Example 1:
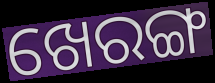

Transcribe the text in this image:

ଖେରଙ୍ଗ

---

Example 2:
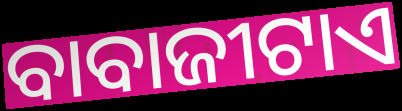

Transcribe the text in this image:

ବାବାଜୀଟାଏ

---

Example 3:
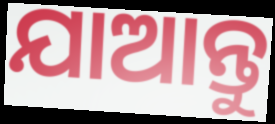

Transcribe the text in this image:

ଯାଆନ୍ତୁ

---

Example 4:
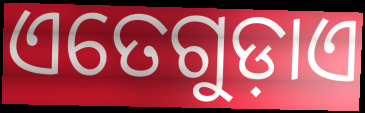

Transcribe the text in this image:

ଏତେଗୁଡ଼ାଏ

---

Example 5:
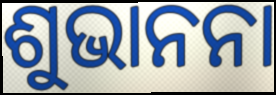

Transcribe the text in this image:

ଶୁଭାନନା